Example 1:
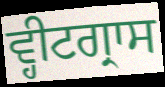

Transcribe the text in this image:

ਵ੍ਹੀਟਗ੍ਰਾਸ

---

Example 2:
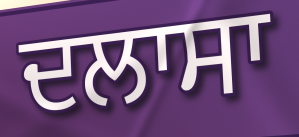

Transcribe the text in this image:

ਦਲਾਸਾ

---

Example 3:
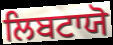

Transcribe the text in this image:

ਲਿਬਟਾਯੋ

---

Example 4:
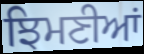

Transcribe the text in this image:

ਝਿਮਣੀਆਂ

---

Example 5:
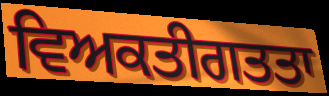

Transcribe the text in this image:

ਵਿਅਕਤੀਗਤਤਾ